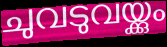
ചുവടുവയ്ക്കും